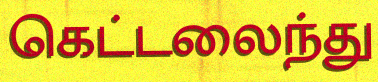
கெட்டலைந்து